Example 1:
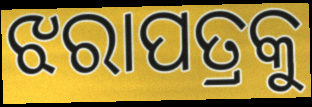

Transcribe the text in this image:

ଝରାପତ୍ରକୁ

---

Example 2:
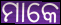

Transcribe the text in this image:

ମାକେ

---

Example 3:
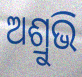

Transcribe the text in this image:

ଅଶ୍ରୁଭି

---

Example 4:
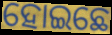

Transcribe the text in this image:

ହୋଇଛେ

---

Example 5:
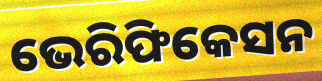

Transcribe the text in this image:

ଭେରିଫିକେସନ